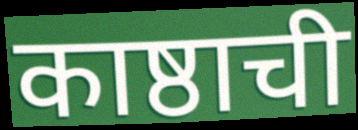
काष्ठाची